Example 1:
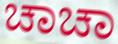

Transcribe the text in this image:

ಚಾಚಾ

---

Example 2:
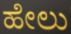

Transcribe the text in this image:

ಹೇಲು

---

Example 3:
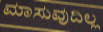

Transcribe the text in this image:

ಮಾಸುವುದಿಲ್ಲ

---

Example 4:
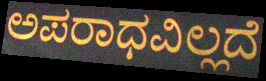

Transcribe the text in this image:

ಅಪರಾಧವಿಲ್ಲದೆ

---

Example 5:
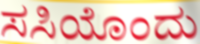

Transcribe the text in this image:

ಸಸಿಯೊಂದು